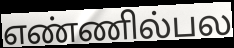
எண்ணில்பல